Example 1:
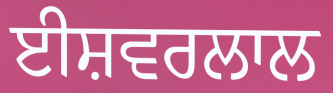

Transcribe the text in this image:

ਈਸ਼ਵਰਲਾਲ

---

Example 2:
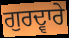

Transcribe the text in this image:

ਗੁਰਦ੍ਵਾਰੇ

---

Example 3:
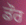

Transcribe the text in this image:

ਡੌਰ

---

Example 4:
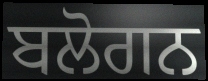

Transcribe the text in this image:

ਬਲੋਗਨ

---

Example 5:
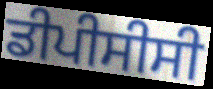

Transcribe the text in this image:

ਡੀਪੀਸੀਸੀ